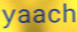
yaach